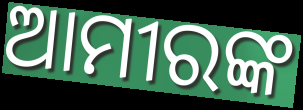
ଆମୀରଙ୍କ